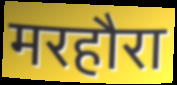
मरहौरा